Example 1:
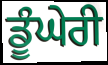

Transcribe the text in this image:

ਡੂੰਘੇਰੀ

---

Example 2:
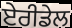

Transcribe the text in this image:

ਏਰੀਡੇਲ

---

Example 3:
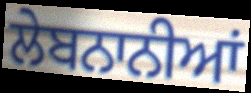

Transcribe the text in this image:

ਲੇਬਨਾਨੀਆਂ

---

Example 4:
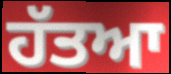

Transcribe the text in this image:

ਹੱਤਆ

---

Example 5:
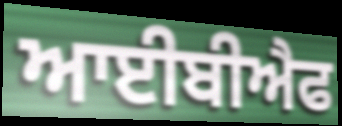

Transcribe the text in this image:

ਆਈਬੀਐਫ